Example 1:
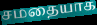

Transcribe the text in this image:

சமதையாக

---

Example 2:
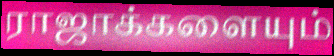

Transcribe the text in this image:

ராஜாக்களையும்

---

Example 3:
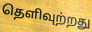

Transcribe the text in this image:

தெளிவுற்றது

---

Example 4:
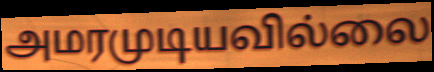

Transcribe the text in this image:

அமரமுடியவில்லை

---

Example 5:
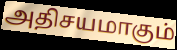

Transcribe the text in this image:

அதிசயமாகும்